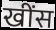
खींस